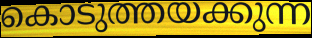
കൊടുത്തയക്കുന്ന